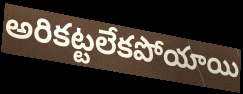
అరికట్టలేకపోయాయి